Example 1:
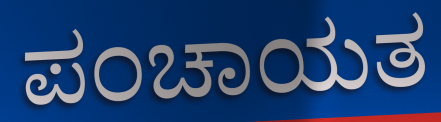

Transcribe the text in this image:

ಪಂಚಾಯತ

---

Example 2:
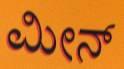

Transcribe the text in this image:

ಮೀನ್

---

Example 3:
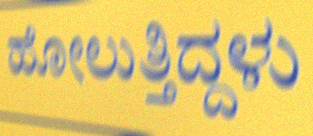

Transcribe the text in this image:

ಹೋಲುತ್ತಿದ್ದಳು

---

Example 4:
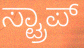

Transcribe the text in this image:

ಸ್ಟ್ರಾಪ್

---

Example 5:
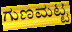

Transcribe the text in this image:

ಗುಣಮಟ್ಟ